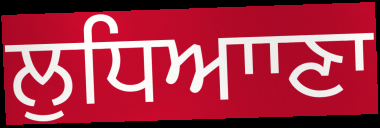
ਲੁਧਿਆਾਣਾ